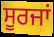
ਸੂਰਜਾਂ